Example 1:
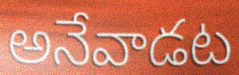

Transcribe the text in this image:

అనేవాడట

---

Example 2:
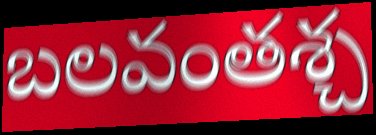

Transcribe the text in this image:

బలవంతశ్చ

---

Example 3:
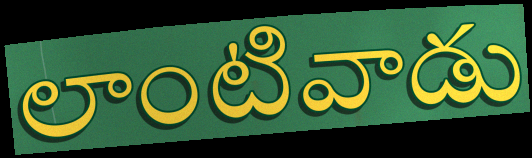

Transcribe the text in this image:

లాంటివాడు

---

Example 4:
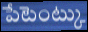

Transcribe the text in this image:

పేటెంట్కు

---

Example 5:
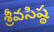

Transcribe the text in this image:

శ్రీవసిష్ఠ